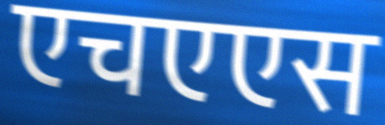
एचएएस